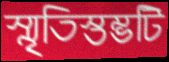
স্মৃতিস্তম্ভটি